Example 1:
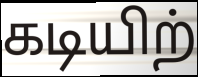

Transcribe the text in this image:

கடியிற்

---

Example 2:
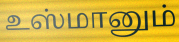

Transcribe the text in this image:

உஸ்மானும்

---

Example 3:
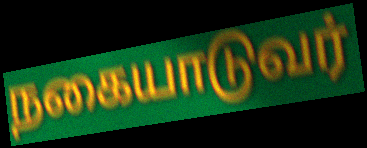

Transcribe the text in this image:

நகையாடுவர்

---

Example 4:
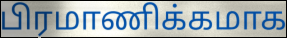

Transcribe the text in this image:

பிரமாணிக்கமாக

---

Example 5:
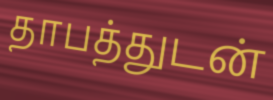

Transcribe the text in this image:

தாபத்துடன்